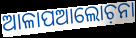
ଆଳାପଆଲୋଚ଼ନା